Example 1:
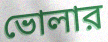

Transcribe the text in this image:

ভোলার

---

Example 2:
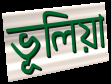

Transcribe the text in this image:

ভূলিয়া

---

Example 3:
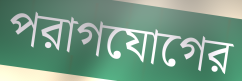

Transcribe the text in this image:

পরাগযোগের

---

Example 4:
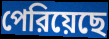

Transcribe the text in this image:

পেরিয়েছে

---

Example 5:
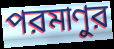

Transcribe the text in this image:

পরমাণুর